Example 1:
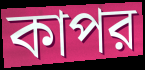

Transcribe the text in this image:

কাপর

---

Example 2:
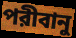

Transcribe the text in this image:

পরীবানু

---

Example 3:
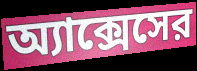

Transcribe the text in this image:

অ্যাক্সেসের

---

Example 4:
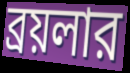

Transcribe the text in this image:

ব্রয়লার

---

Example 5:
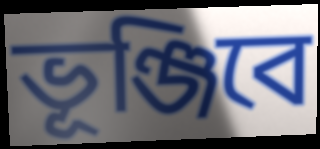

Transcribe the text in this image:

ভূঞ্জিবে